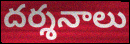
దర్శనాలు